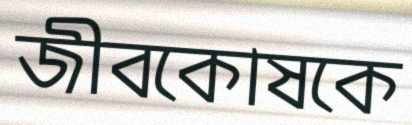
জীবকোষকে